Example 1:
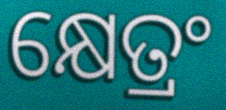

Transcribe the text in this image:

କ୍ଷେତ୍ରଂ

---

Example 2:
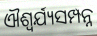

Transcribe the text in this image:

ଐଶ୍ୱର୍ଯ୍ୟସମ୍ପନ୍ନ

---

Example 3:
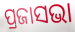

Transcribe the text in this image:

ପ୍ରଜାସଭା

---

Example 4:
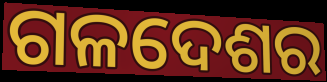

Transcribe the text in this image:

ଗଳଦେଶର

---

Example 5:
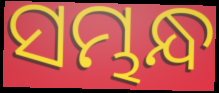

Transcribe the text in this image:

ସମ୍ଭନ୍ଧ